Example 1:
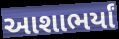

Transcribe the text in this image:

આશાભર્યાં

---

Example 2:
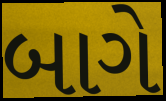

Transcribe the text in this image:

બાગે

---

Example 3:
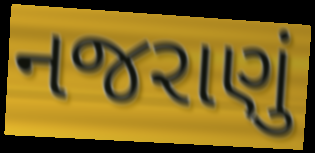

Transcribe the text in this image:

નજરાણું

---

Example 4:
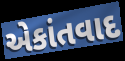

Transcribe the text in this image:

એકાંતવાદ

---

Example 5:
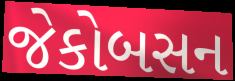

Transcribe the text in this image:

જેકોબસન